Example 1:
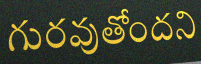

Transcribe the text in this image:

గురవుతోందని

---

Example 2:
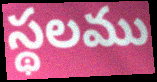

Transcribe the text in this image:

స్థలము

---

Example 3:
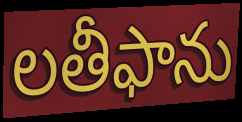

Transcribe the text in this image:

లతీఫాను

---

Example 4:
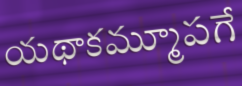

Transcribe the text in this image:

యథాకమ్మూపగే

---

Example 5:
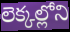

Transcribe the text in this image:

లెక్కల్లోని